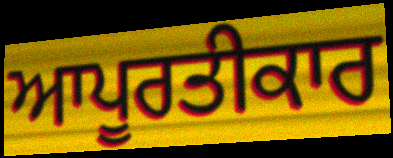
ਆਪੂਰਤੀਕਾਰ